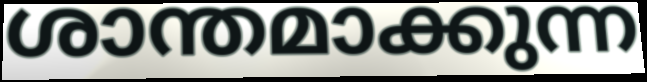
ശാന്തമാക്കുന്ന